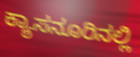
ಕ್ಯಾಸನೂರಿನಲ್ಲಿ